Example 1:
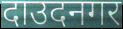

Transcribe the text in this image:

दाउदनगर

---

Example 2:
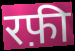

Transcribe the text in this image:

रफ़ी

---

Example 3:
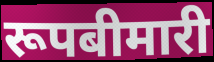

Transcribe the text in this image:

रूपबीमारी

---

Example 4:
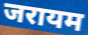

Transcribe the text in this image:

जरायम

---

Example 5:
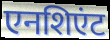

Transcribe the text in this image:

एनशिएंट